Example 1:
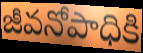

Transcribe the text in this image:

జీవనోపాధికి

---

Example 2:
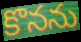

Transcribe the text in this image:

కొనను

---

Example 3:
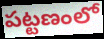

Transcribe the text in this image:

పట్టణంలో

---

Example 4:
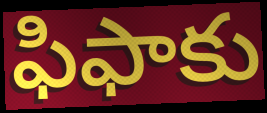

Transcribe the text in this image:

ఫిఫాకు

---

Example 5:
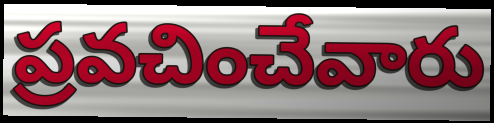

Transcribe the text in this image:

ప్రవచించేవారు